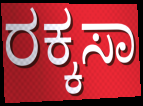
ರಕ್ಕಸಾ